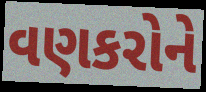
વણકરોને